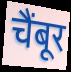
चैंबूर